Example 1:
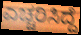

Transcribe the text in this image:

ಎಚ್ಚರಿಸಿದ್ದೆ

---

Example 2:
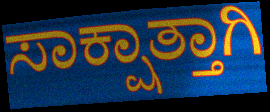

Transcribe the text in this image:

ಸಾಕ್ಷಾತ್ತಾಗಿ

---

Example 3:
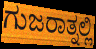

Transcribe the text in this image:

ಗುಜರಾತ್ನಲ್ಲಿ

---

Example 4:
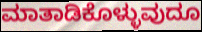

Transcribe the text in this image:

ಮಾತಾಡಿಕೊಳ್ಳುವುದೂ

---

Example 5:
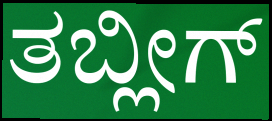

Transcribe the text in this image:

ತಬ್ಲೀಗ್